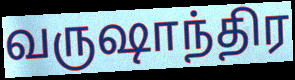
வருஷாந்திர